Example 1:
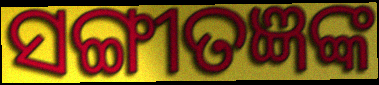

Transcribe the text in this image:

ସଙ୍ଗୀତଜ୍ଞଙ୍କ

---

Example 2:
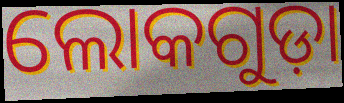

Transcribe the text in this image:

ଲୋକଗୁଡ଼ା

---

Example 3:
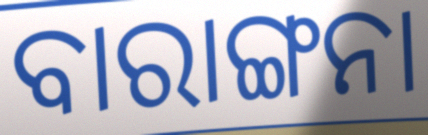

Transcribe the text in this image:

ବାରାଙ୍ଗନା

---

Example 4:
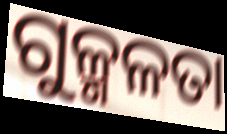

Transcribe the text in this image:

ଗୁଳ୍ମଳତା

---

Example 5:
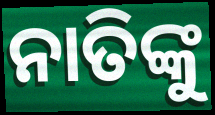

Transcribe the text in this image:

ନାତିଙ୍କୁ